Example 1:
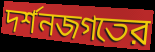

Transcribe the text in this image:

দর্শনজগতের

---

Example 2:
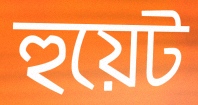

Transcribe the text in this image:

হুয়েট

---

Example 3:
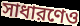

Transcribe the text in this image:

সাধারণেও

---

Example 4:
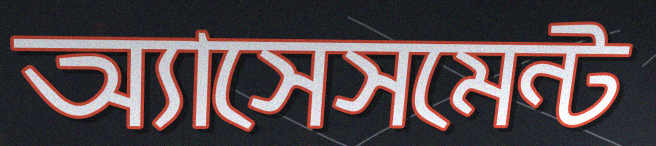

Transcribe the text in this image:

অ্যাসেসমেন্ট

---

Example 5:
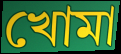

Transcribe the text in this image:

খোমা